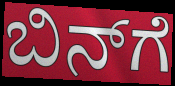
ಬಿನ್‌ಗೆ